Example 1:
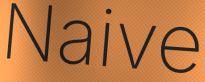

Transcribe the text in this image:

Naive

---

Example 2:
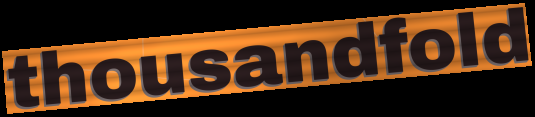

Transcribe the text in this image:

thousandfold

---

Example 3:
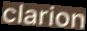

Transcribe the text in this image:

clarion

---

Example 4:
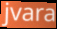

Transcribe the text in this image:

jvara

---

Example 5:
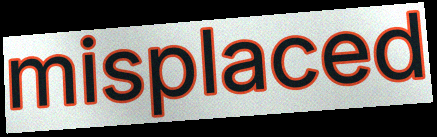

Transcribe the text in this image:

misplaced